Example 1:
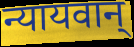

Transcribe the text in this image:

न्यायवान्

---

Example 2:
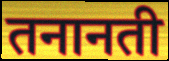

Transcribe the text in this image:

तनानती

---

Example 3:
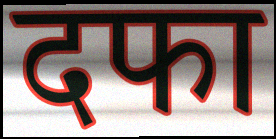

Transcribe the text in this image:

दफा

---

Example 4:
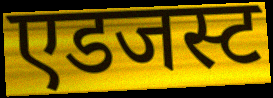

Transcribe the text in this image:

एडजस्ट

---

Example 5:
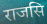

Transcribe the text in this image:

राजसि